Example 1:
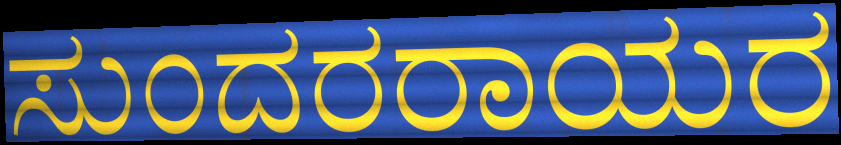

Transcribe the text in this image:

ಸುಂದರರಾಯರ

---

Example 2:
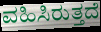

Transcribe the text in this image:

ವಹಿಸಿರುತ್ತದೆ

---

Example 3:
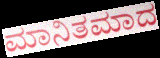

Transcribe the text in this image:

ಮಾನಿತಮಾದ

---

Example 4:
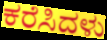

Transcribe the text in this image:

ಕರೆಸಿದಳು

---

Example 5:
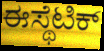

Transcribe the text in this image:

ಈಸ್ಥೆಟಿಕ್